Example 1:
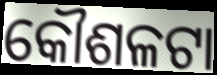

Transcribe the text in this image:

କୌଶଳଟା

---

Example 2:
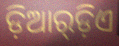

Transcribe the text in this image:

ଡ଼ିଆର୍‌ଡ଼ିଏ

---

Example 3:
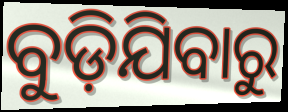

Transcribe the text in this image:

ବୁଡ଼ିଯିବାରୁ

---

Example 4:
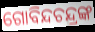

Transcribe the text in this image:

ଗୋବିନ୍ଦଚନ୍ଦ୍ରଙ୍କ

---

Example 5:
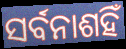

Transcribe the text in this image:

ସର୍ବନାଶହିଁ